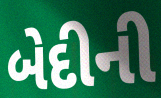
બેદીની